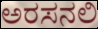
ಅರಸನಲಿ